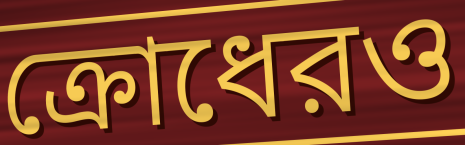
ক্রোধেরও